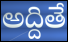
అద్దితే